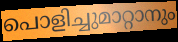
പൊളിച്ചുമാറ്റാനും